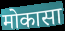
मोकासा